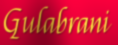
Gulabrani